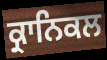
ਕ੍ਰਾਨਿਕਲ